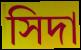
সিদা